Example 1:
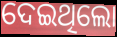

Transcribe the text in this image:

ଦେଇଥିଲୋ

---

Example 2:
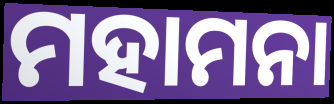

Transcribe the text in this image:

ମହାମନା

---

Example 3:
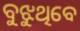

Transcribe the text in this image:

ବୁଝୁଥିବେ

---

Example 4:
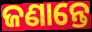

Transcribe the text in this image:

ଜଣାନ୍ତେ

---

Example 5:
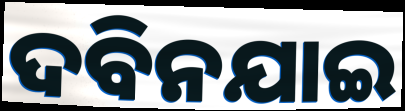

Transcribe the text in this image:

ଦବିନଯାଇ